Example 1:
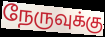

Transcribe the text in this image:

நேருவுக்கு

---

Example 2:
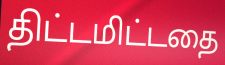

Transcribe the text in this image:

திட்டமிட்டதை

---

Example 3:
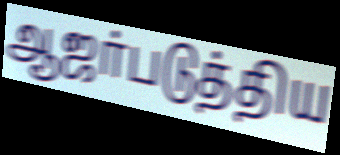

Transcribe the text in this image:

ஆஜர்படுத்திய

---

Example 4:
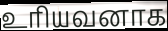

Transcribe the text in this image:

உரியவனாக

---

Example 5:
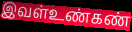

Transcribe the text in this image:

இவள்உண்கண்